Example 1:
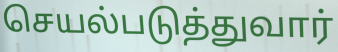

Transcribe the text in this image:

செயல்படுத்துவார்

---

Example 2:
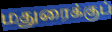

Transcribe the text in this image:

மதுரைக்குப்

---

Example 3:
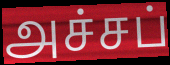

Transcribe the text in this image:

அச்சப்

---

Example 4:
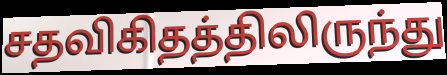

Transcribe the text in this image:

சதவிகிதத்திலிருந்து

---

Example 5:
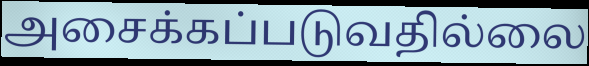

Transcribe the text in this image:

அசைக்கப்படுவதில்லை